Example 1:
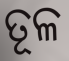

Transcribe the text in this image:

ତୂଳ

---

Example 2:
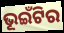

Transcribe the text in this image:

ଭୂଇଁଟିର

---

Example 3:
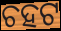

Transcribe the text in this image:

ଚହଟ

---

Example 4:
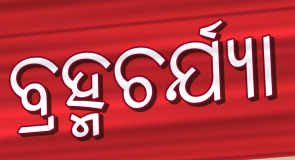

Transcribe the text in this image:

ବ୍ରହ୍ମଚର୍ଯ୍ୟା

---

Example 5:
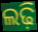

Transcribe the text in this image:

ଲଢ଼ି